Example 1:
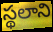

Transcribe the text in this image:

స్థలాని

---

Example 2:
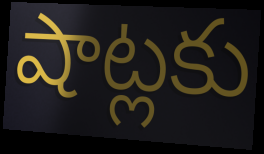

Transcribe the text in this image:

షాట్లకు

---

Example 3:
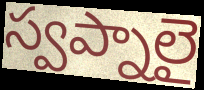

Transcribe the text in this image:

స్వప్నాలై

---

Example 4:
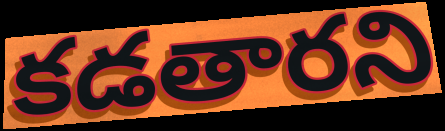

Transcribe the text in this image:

కడతారని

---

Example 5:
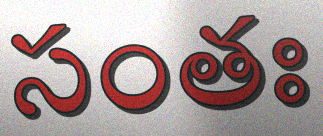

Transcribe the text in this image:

సంతః